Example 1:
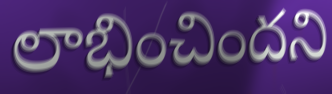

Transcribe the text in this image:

లాభించిందని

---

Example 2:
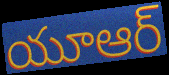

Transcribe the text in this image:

యూఆర్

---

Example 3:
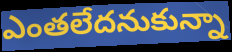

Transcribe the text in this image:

ఎంతలేదనుకున్నా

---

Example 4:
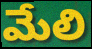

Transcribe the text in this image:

మేలి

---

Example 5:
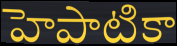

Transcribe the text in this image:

హెపాటికా